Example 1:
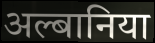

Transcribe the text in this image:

अल्बानिया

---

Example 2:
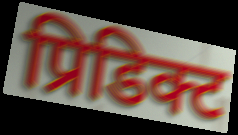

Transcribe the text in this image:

प्रिडिक्ट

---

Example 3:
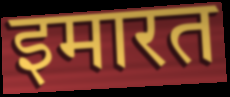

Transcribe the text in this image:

इमारत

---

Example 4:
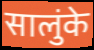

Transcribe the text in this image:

सालुंके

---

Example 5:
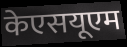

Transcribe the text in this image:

केएसयूएम